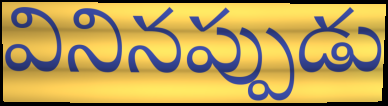
వినినప్పుడు